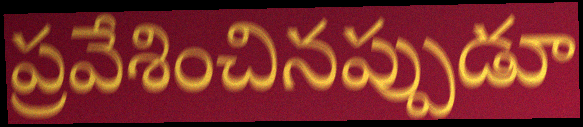
ప్రవేశించినప్పుడూ